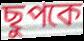
ছুপকে